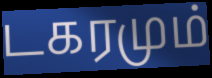
டகரமும்